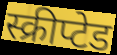
स्क्रीप्टेड